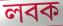
লবক